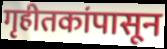
गृहीतकांपासून